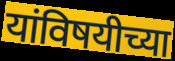
यांविषयीच्या